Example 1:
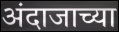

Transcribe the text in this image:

अंदाजाच्या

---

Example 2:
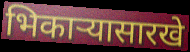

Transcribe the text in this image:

भिकार्‍यासारखे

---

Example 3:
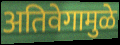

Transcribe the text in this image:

अतिवेगामुळे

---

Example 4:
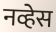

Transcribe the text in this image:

नव्हेस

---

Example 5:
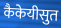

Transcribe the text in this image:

कैकेयीसुत